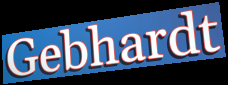
Gebhardt